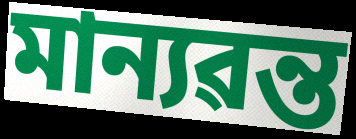
মান্যৱন্ত